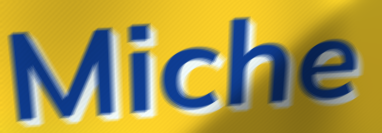
Miche